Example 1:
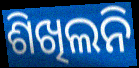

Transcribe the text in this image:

ଶିଖିଲନି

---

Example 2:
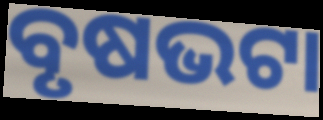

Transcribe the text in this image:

ବୃଷଭଟା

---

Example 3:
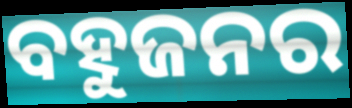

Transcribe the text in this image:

ବହୁଜନର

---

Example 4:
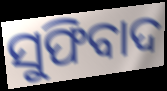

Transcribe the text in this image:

ସୁଫିବାଦ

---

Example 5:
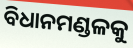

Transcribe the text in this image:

ବିଧାନମଣ୍ଡଳକୁ